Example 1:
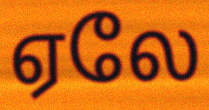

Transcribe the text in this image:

ஏலே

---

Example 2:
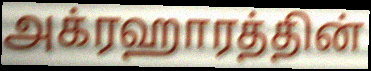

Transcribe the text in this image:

அக்ரஹாரத்தின்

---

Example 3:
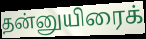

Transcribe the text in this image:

தன்னுயிரைக்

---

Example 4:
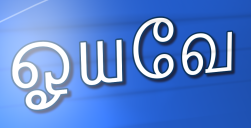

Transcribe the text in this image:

ஓயவே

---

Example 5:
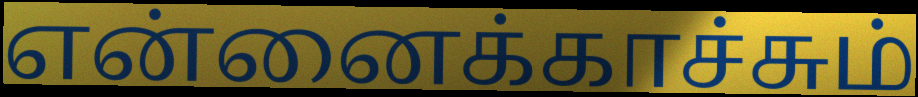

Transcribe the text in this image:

என்னைக்காச்சும்